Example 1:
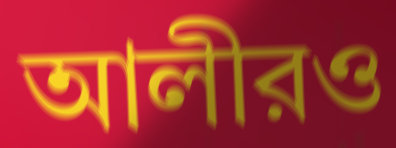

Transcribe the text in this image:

আলীরও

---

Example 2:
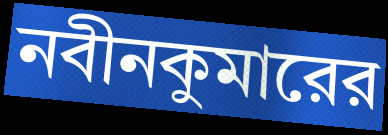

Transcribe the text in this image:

নবীনকুমারের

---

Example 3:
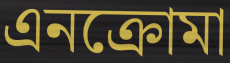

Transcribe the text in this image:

এনক্রোমা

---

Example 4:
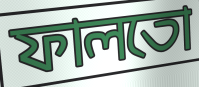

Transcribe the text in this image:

ফালতো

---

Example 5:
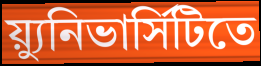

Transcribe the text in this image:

য়্যুনিভার্সিটিতে